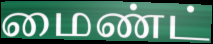
மைண்ட்